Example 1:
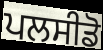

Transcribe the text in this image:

ਪਲਸੀਡੋ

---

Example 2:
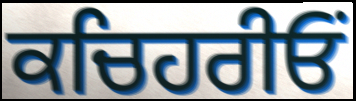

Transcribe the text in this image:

ਕਚਿਹਰੀਓਂ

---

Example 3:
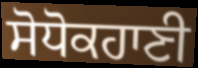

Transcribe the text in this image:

ਸੋਧੋਕਹਾਣੀ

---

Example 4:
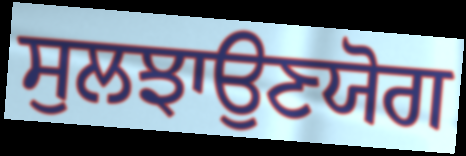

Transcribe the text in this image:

ਸੁਲਝਾਉਣਯੋਗ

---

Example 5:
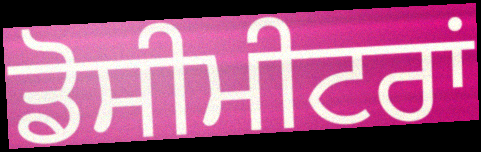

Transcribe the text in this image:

ਡੋਸੀਮੀਟਰਾਂ